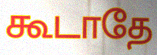
கூடாதே